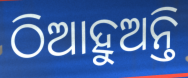
ଠିଆହୁଅନ୍ତି